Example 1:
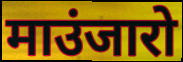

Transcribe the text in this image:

माउंजारो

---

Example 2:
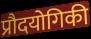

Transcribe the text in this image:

प्रौदयोगिकी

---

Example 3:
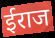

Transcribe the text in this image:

ईराज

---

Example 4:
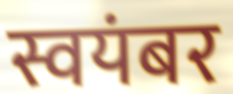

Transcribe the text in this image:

स्वयंबर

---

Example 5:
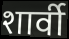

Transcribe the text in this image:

शार्वी